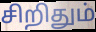
சிறிதும்